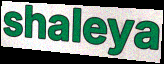
shaleya